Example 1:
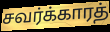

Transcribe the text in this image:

சவர்க்காரத்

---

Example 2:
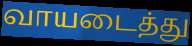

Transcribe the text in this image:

வாயடைத்து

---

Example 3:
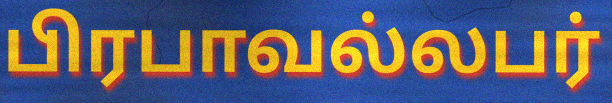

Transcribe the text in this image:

பிரபாவல்லபர்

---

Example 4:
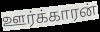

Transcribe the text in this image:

ஊர்க்காரன்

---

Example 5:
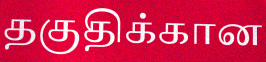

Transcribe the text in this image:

தகுதிக்கான